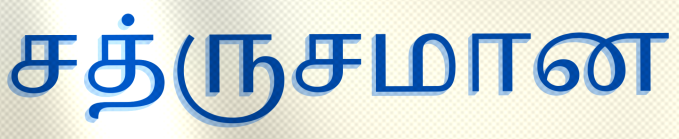
சத்ருசமான